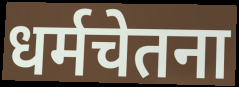
धर्मचेतना